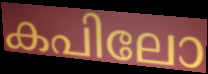
കപിലോ